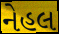
નેહલ